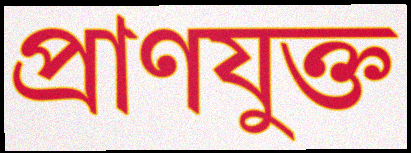
প্রাণযুক্ত